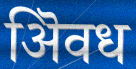
ऄिवध